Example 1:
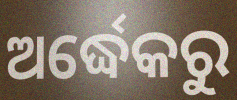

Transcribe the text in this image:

ଅର୍ଦ୍ଧେକରୁ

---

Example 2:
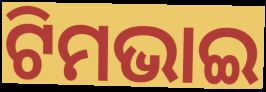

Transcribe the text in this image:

ଟିମଭାଇ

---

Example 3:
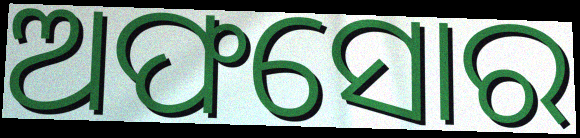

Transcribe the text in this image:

ଅଫସୋର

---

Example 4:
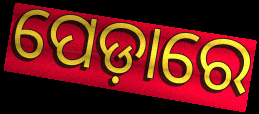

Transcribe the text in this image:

ପେଡ଼ାରେ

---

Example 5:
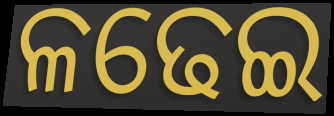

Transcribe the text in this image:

ଳଢେଇ